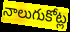
నాలుగుకోట్ల